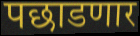
पछाडणार